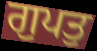
ਗੁਪਤੁ